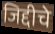
जिद्दीचे